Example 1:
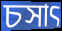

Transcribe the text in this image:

চসাৎ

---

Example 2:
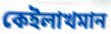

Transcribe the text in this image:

কেইলাখমান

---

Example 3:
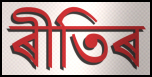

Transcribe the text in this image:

ৰীতিৰ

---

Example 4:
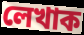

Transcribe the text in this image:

লেখাক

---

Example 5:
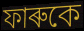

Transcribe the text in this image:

ফাৰুকে